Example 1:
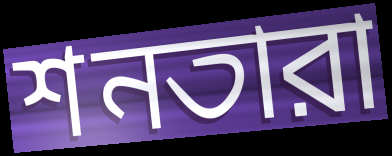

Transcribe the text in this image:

শনতারা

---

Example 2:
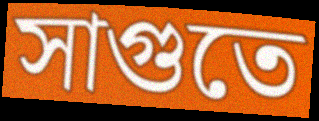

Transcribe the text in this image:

সাগুতে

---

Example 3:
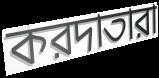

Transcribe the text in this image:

করদাতারা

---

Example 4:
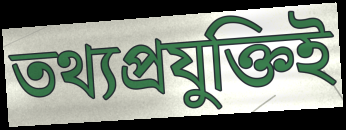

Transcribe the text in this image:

তথ্যপ্রযুক্তিই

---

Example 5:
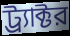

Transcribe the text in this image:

ট্র্যাক্টর